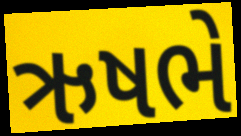
ઋષભે